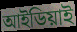
আইডিয়াই